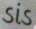
ડાંડ